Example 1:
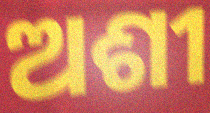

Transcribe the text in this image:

ଅଶୀ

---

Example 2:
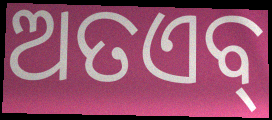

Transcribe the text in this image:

ଅତଏବ୍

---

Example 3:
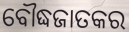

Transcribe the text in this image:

ବୌଦ୍ଧଜାତକର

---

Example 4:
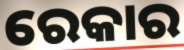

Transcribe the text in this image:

ରେକାର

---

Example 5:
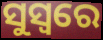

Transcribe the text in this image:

ସୁସ୍ୱରେ